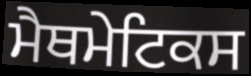
ਮੈਥਮੇਟਿਕਸ